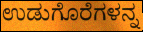
ಉಡುಗೊರೆಗಳನ್ನ